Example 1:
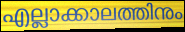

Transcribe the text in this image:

എല്ലാക്കാലത്തിനും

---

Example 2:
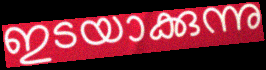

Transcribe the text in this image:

ഇടയാക്കുന്നു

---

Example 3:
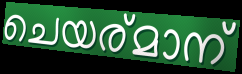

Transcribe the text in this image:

ചെയര്മാന്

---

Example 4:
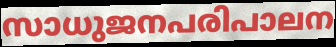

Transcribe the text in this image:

സാധുജനപരിപാലന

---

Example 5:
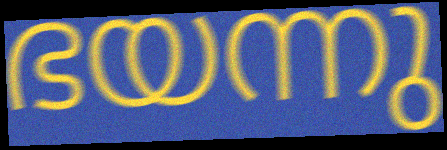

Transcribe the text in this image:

ഭയന്നു